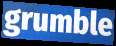
grumble